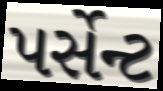
પર્સેન્ટ